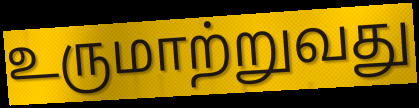
உருமாற்றுவது